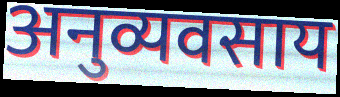
अनुव्यवसाय